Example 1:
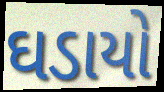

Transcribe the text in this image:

ઘડાયો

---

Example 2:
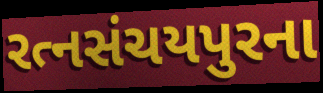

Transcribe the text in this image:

રત્નસંચયપુરના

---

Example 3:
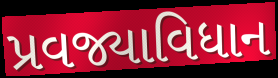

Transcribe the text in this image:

પ્રવજ્યાવિધાન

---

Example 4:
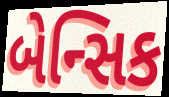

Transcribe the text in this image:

બેન્સિક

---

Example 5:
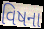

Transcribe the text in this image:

વિષના